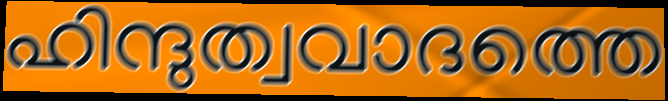
ഹിന്ദുത്വവാദത്തെ